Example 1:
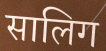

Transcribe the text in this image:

सालिग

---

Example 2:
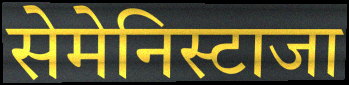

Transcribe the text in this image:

सेमेनिस्टाजा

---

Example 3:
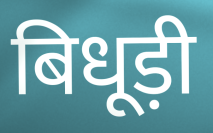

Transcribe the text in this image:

बिधूड़ी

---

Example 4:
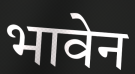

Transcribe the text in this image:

भावेन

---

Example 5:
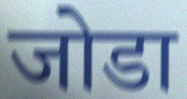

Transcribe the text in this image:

जोडा